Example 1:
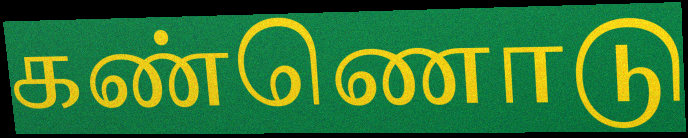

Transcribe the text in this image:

கண்ணொடு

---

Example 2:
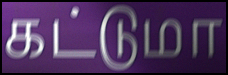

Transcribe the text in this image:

கட்டுமா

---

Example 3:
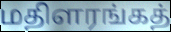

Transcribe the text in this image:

மதிளரங்கத்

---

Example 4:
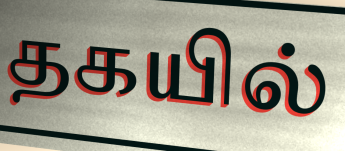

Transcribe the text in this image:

தகயில்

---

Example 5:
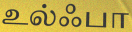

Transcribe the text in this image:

உல்ஃபா